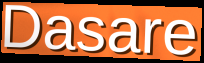
Dasare